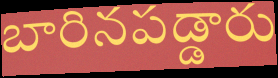
బారినపడ్డారు